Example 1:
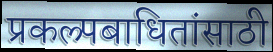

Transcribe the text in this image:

प्रकल्पबाधितांसाठी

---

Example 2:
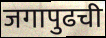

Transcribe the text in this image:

जगापुढची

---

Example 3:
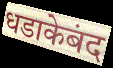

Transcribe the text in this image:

धडाकेबंद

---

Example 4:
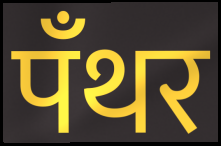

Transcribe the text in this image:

पँथर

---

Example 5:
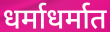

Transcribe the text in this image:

धर्माधर्मात